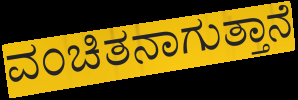
ವಂಚಿತನಾಗುತ್ತಾನೆ